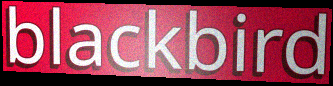
blackbird